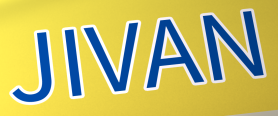
JIVAN